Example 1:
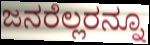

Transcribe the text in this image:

ಜನರೆಲ್ಲರನ್ನೂ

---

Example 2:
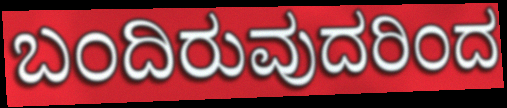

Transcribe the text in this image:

ಬಂದಿರುವುದರಿಂದ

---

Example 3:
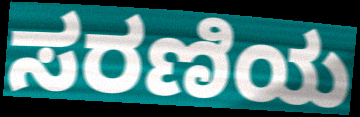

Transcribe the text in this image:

ಸರಣಿಯ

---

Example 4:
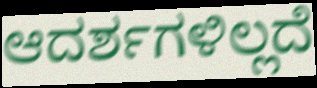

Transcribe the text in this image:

ಆದರ್ಶಗಳಿಲ್ಲದೆ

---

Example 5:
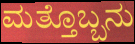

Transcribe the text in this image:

ಮತ್ತೊಬ್ಬನು